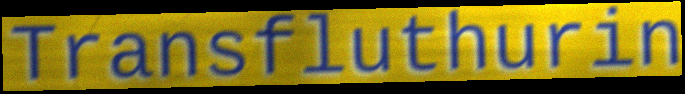
Transfluthurin